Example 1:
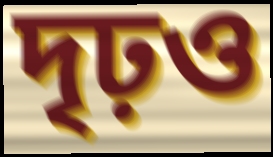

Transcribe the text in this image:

দৃঢ়ও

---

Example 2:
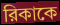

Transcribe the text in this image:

রিকাকে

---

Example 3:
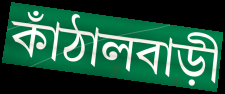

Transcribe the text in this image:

কাঁঠালবাড়ী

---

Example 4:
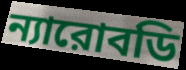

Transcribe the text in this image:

ন্যারোবডি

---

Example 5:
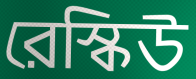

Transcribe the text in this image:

রেস্কিউ